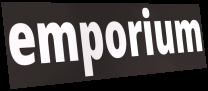
emporium